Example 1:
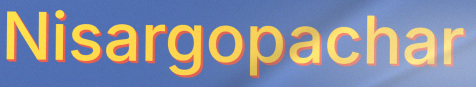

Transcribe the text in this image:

Nisargopachar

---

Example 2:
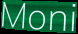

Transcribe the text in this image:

Moni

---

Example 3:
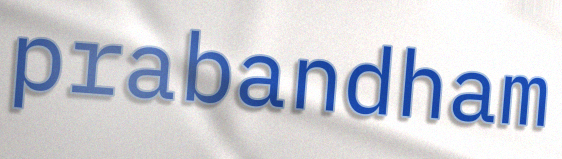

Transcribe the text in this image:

prabandham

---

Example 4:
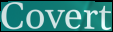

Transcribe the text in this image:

Covert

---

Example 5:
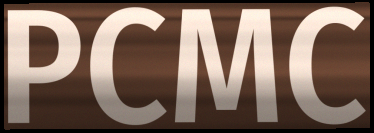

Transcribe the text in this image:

PCMC